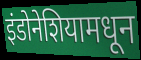
इंडोनेशियामधून